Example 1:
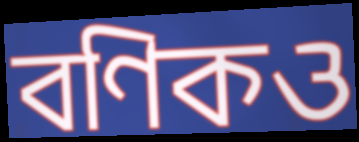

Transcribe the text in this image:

বণিকও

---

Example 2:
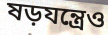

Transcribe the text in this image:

ষড়যন্ত্রেও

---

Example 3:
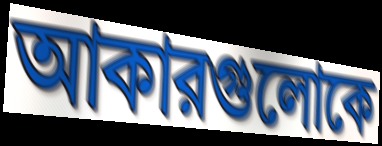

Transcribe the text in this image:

আকারগুলোকে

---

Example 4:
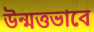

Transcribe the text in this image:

উন্মত্তভাবে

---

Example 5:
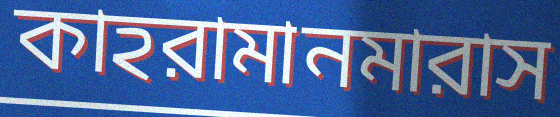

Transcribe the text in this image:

কাহরামানমারাস